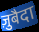
ज़ुबैदा